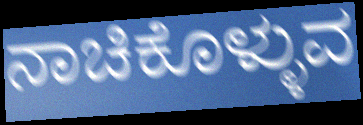
ನಾಚಿಕೊಳ್ಳುವ